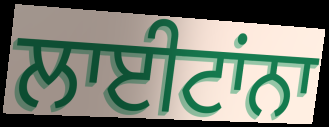
ਲਾਈਟਾਂਨਾ